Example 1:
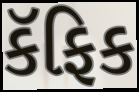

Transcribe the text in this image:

કૅફિક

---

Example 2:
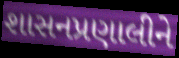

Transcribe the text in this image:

શાસનપ્રણાલીને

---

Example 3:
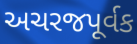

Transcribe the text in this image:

અચરજપૂર્વક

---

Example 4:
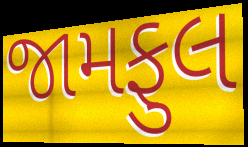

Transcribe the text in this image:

જામફુલ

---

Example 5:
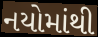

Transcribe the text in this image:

નયોમાંથી